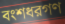
বংশধরগণ